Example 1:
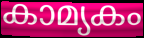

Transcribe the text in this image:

കാമ്യകം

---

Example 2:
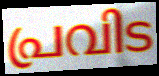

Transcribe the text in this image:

പ്രവിട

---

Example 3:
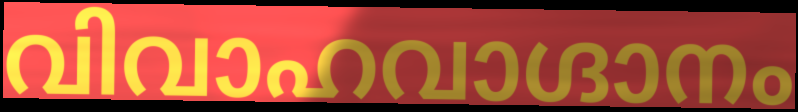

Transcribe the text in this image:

വിവാഹവാഗ്ദാനം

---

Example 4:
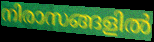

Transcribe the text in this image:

നിരാസങ്ങളിൽ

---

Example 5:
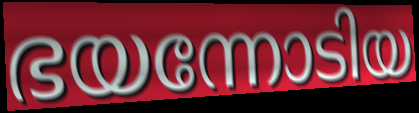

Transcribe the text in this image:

ഭയന്നോടിയ